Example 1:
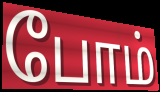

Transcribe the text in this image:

போம்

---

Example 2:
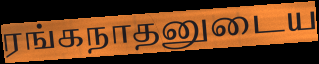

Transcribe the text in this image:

ரங்கநாதனுடைய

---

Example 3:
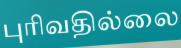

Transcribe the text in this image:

புரிவதில்லை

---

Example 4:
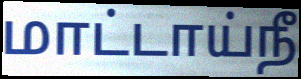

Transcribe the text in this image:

மாட்டாய்நீ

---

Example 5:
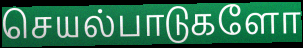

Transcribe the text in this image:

செயல்பாடுகளோ